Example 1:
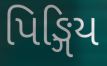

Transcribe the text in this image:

પિઙ્ગિય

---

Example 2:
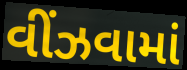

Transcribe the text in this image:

વીંઝવામાં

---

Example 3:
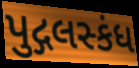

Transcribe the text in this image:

પુદ્ગલસ્કંધ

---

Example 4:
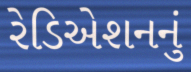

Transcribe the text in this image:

રેડિએશનનું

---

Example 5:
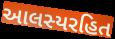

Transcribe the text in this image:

આલસ્યરહિત